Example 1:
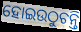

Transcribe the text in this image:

ହୋଇଉଠୁଚନ୍ତି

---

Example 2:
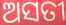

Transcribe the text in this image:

ଅସତୀ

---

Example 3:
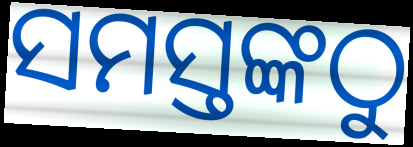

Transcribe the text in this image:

ସମସ୍ତଙ୍କଠୁ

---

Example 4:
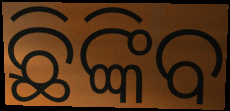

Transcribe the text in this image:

ଛିଙ୍କିବ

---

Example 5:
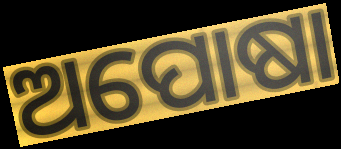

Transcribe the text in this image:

ଅପୋଷା